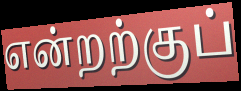
என்றற்குப்